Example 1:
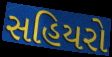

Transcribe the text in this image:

સહિયરો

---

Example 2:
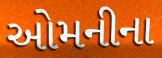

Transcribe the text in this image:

ઓમનીના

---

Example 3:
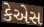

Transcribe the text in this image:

કેએસ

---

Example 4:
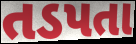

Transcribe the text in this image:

તડપતા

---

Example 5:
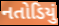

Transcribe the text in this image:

નતોડિયું